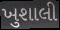
ખુશાલી